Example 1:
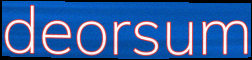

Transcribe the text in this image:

deorsum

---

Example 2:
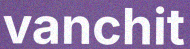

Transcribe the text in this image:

vanchit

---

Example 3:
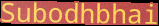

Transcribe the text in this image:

Subodhbhai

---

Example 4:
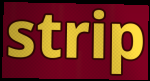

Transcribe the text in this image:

strip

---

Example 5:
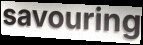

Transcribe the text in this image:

savouring